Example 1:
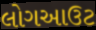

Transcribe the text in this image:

લોગઆઉટ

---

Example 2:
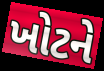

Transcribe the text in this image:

ખોટને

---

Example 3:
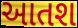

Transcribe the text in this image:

આતશ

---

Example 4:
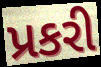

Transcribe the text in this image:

પ્રકરી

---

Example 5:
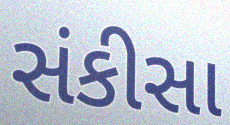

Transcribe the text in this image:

સંકીસા